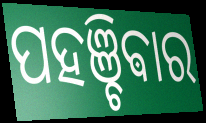
ପହଞ୍ଚିଵାର